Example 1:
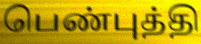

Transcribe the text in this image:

பெண்புத்தி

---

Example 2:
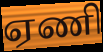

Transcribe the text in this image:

ஏணி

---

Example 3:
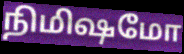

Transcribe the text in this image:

நிமிஷமோ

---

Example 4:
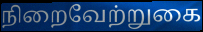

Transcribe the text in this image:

நிறைவேற்றுகை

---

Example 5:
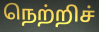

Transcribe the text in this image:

நெற்றிச்